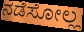
ನಡೆಸೋಲ್ಲ